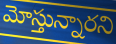
మోస్తున్నారని